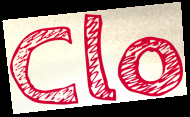
Clo